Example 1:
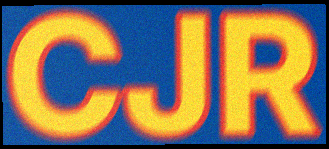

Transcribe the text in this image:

CJR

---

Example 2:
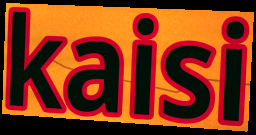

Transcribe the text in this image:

kaisi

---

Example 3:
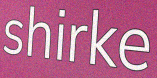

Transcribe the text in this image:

shirke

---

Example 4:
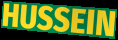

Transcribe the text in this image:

HUSSEIN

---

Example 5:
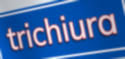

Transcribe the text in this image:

trichiura